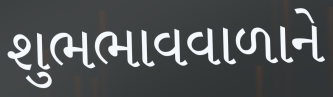
શુભભાવવાળાને